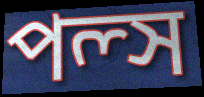
পল্স